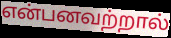
என்பனவற்றால்